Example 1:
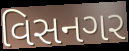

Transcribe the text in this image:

વિસનગર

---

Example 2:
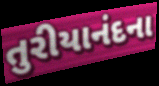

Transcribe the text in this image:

તુરીયાનંદના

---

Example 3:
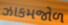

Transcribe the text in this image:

ઝાકમજોળ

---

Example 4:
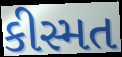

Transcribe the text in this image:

કીસ્મત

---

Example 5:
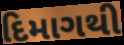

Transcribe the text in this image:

દિમાગથી